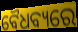
ବୈଧବ୍ୟରେ